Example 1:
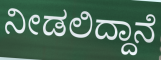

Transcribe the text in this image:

ನೀಡಲಿದ್ದಾನೆ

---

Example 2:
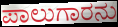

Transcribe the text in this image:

ಪಾಲುಗಾರನು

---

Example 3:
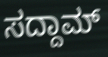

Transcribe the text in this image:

ಸದ್ದಾಮ್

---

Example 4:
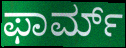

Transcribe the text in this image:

ಫಾರ್ಮ್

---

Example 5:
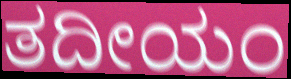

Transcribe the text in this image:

ತದೀಯಂ